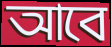
আবে